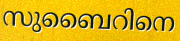
സുബൈറിനെ